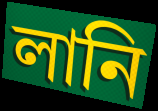
লানি